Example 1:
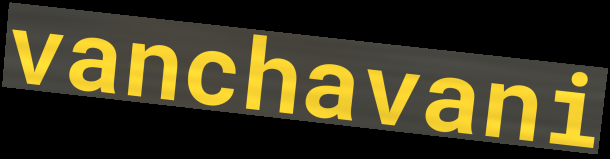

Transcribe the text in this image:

vanchavani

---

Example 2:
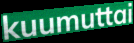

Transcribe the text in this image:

kuumuttai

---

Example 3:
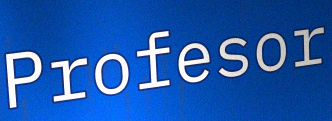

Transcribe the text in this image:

Profesor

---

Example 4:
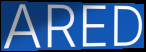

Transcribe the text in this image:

ARED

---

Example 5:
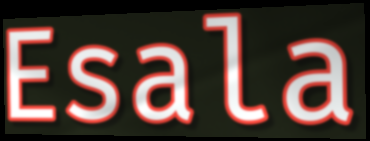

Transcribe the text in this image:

Esala